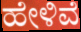
ಹೇಳಿವೆ